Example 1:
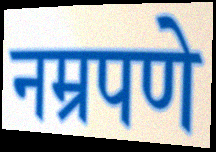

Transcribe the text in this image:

नम्रपणे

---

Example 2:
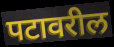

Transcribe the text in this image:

पटावरील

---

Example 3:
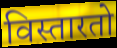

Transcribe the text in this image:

विस्तारतो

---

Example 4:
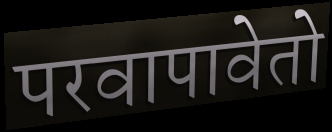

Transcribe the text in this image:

परवापावेतो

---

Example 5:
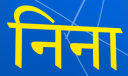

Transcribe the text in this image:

निना